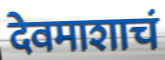
देवमाशाचं